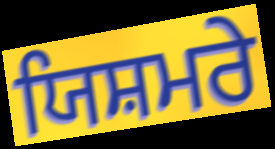
ਯਿਸ਼ਮਰੇ